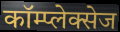
कॉम्प्लेक्सेज